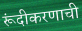
रूंदीकरणाची